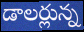
డాలర్లున్న